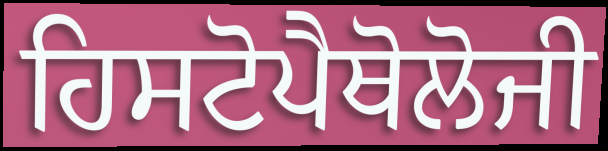
ਹਿਸਟੋਪੈਥੋਲੋਜੀ